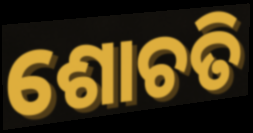
ଶୋଚତି